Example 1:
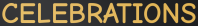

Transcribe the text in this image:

CELEBRATIONS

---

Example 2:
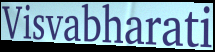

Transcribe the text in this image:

Visvabharati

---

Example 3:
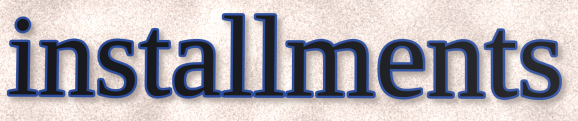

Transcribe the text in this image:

installments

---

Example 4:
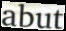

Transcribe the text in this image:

abut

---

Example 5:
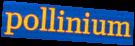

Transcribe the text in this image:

pollinium